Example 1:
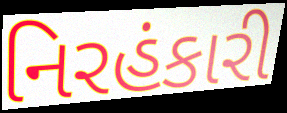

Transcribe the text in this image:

નિરહંકારી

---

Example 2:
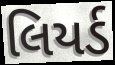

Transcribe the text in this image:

લિયર્ડ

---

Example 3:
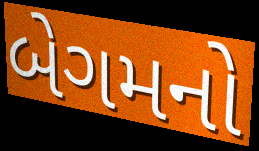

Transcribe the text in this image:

બેગમનો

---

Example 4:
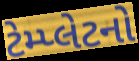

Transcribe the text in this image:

ટેમ્પ્લેટનો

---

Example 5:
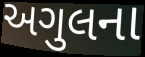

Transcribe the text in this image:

અગુલના